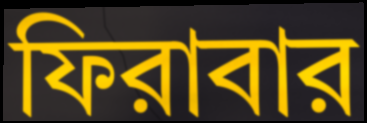
ফিরাবার